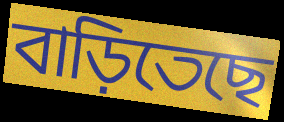
বাড়িতেছে